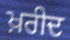
ਖ਼ਰੀਦ